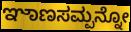
ಞಾಣಸಮ್ಪನ್ನೋ